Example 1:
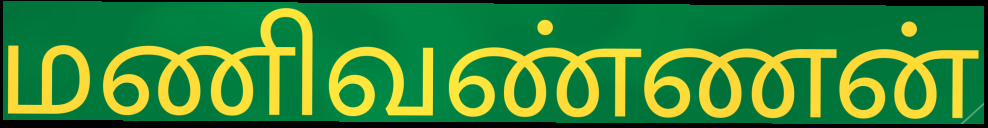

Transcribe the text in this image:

மணிவண்ணன்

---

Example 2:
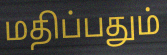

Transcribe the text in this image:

மதிப்பதும்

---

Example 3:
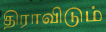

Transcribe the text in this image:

திராவிடும்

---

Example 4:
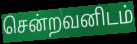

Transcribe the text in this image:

சென்றவனிடம்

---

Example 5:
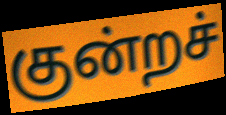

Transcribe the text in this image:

குன்றச்